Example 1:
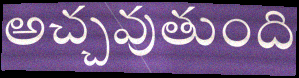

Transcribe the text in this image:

అచ్చవుతుంది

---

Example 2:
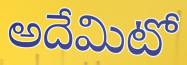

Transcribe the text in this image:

అదేమిటో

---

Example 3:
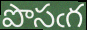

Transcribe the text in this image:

పొసఁగ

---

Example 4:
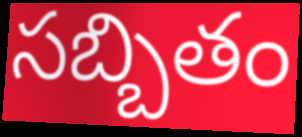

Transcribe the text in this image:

సబ్బితం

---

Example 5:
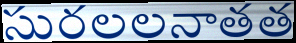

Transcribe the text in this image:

సురలలనాతత